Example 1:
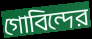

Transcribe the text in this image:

গোবিন্দের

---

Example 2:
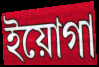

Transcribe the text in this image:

ইয়োগা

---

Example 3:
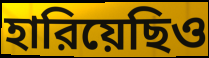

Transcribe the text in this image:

হারিয়েছিও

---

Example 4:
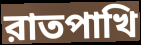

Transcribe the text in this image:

রাতপাখি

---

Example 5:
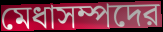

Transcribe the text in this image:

মেধাসম্পদের